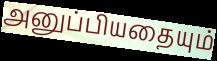
அனுப்பியதையும்